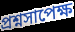
প্রশ্নসাপেক্ষ